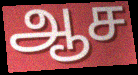
ஆச